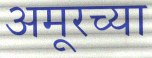
अमूरच्या